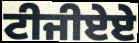
ਟੀਜੀਏਏ